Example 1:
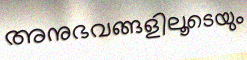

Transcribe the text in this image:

അനുഭവങ്ങളിലൂടെയും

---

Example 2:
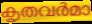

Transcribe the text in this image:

കൃതവർമാ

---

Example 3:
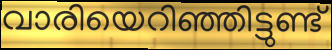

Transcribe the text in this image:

വാരിയെറിഞ്ഞിട്ടുണ്ട്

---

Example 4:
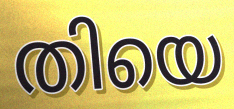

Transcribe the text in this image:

തിയെ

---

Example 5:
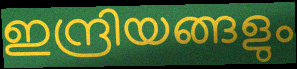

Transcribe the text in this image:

ഇന്ദ്രിയങ്ങളും